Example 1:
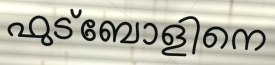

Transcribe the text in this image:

ഫുട്ബോളിനെ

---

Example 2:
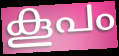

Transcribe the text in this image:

കൂപം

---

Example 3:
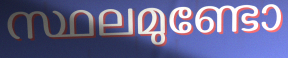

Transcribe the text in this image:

സ്ഥലമുണ്ടോ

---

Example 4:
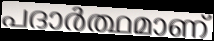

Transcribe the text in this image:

പദാർത്ഥമാണ്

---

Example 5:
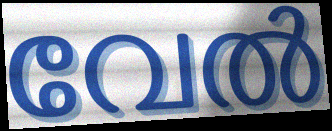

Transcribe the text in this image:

വേൽ